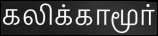
கலிக்காமூர்